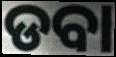
ଡବା